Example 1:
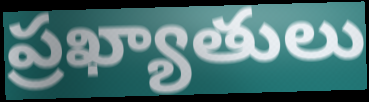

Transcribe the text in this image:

ప్రఖ్యాతులు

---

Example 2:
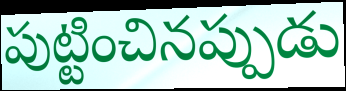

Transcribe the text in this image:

పుట్టించినప్పుడు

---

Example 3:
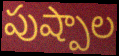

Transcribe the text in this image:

పుష్పాల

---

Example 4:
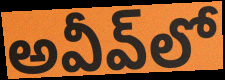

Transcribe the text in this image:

అవీవ్‌లో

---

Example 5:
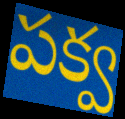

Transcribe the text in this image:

పక్వ